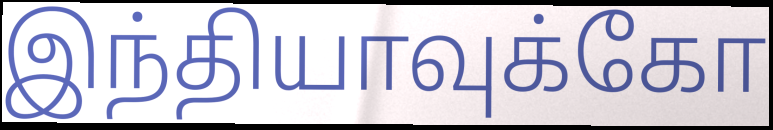
இந்தியாவுக்கோ